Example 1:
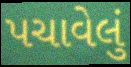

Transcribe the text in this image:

પચાવેલું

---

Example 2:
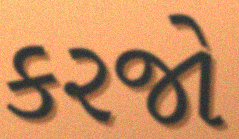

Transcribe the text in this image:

કરજો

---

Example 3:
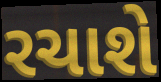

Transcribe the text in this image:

રચાશે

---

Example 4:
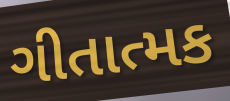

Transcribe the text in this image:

ગીતાત્મક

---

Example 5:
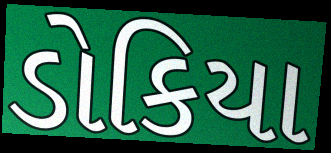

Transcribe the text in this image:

ડોકિયા